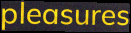
pleasures